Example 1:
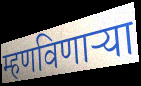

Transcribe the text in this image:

म्हणविणाऱ्या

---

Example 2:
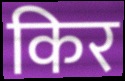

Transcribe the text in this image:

किर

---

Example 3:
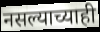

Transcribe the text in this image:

नसल्याच्याही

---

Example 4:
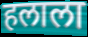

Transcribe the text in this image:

हलाला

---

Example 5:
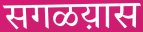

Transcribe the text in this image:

सगळय़ास